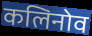
कलिनोव